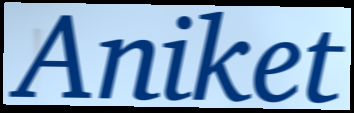
Aniket